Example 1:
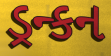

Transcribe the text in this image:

ડ્રન્કન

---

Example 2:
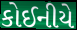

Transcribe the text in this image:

કોઈનીયે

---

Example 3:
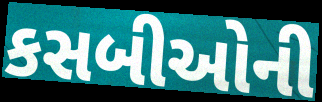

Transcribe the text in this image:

કસબીઓની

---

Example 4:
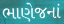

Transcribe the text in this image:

ભાણેજનાં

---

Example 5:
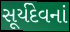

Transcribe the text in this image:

સૂર્યદેવનાં